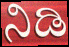
ನಿಡಿ